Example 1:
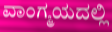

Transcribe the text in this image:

ವಾಂಗ್ಮಯದಲ್ಲಿ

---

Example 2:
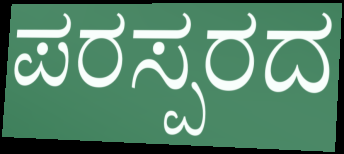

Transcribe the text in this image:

ಪರಸ್ಪರದ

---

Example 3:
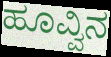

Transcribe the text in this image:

ಹೂವ್ವಿನ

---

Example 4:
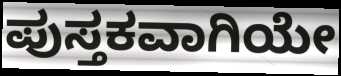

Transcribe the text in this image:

ಪುಸ್ತಕವಾಗಿಯೇ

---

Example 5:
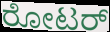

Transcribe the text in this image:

ರೋಟರ್